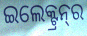
ଇଲେକ୍ଟ୍ରନ୍‌ର